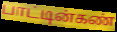
பாட்டின்கண்